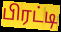
பிரட்டி